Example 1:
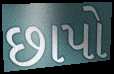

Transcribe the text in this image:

છાપો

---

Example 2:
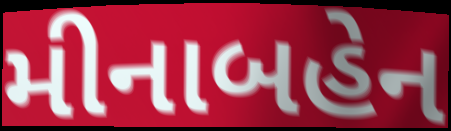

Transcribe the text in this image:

મીનાબહેન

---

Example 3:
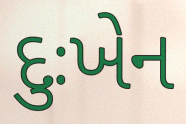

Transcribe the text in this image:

દુઃખેન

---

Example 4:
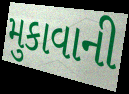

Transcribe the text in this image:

મુકાવાની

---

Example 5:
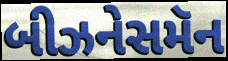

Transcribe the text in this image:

બીઝનેસમૅન